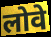
लोवे